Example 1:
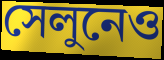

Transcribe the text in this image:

সেলুনেও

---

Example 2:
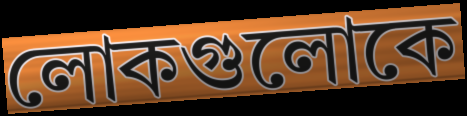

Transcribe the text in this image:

লোকগুলোকে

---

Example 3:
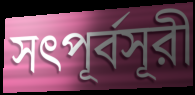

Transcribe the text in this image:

সৎপূর্বসূরী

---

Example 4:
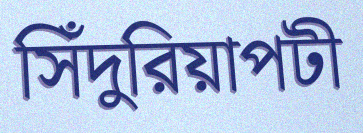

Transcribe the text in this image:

সিঁদুরিয়াপটী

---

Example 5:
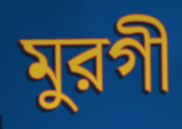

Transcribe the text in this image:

মুরগী